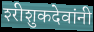
श्रीशुकदेवांनी